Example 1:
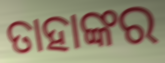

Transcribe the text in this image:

ତାହାଙ୍କର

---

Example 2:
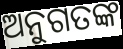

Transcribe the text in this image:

ଅନୁଗତଙ୍କ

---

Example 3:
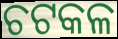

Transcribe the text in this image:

ଚଟକଳ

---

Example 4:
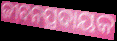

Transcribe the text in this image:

ଜୀବନପ୍ରଦାୟକ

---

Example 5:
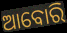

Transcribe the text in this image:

ଆବୋରି